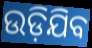
ଉଡ଼ିଯିବ